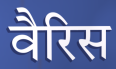
वैरिस